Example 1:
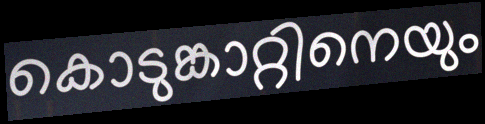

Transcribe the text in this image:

കൊടുങ്കാറ്റിനെയും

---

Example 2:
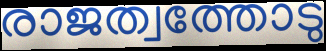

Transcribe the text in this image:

രാജത്വത്തോടു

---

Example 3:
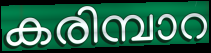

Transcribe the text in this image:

കരിമ്പാറ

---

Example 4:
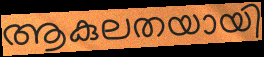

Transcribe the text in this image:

ആകുലതയായി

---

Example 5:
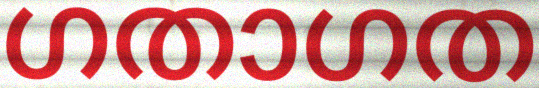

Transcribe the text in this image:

ഗതാഗത